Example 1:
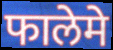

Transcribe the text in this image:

फालेमे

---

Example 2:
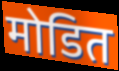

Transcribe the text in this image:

मोडित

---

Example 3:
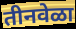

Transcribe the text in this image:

तीनवेळा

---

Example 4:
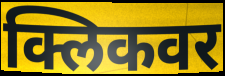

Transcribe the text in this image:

क्लिकवर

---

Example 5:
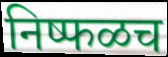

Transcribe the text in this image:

निष्फळच